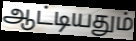
ஆட்டியதும்